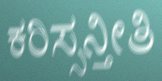
ಕರಿಸ್ಸನ್ತೀತಿ